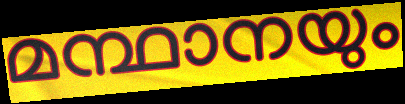
മന്ഥാനയും